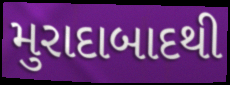
મુરાદાબાદથી